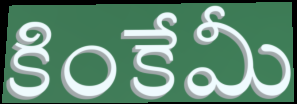
కింకేమీ